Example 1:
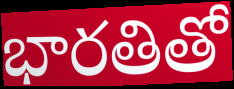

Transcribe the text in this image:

భారతితో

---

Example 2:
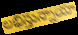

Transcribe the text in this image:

లభిస్తున్నాయా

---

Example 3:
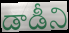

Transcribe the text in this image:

డాడీని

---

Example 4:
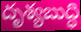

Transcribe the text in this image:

దృశ్యబుద్ధి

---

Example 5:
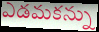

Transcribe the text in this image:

ఎడమకన్ను